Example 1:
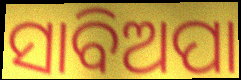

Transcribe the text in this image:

ସାବିଅପା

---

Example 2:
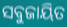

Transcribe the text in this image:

ସବୁଜାୟିତ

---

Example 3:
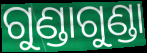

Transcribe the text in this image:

ଗୁଣ୍ଡାଗୁଣ୍ଡା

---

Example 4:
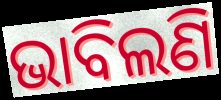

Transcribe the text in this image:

ଭାବିଲଣି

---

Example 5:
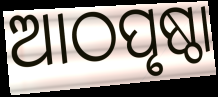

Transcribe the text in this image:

ଆଠପୃଷ୍ଠା